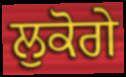
ਲੁਕੋਗੇ